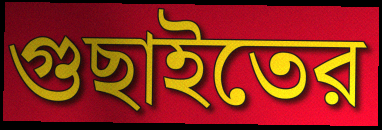
গুছাইতের